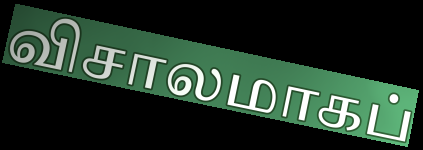
விசாலமாகப்